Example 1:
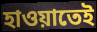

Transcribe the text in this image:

হাওয়াতেই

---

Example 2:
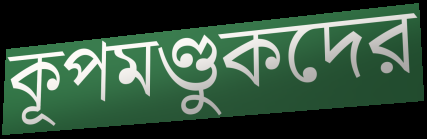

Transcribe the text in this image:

কূপমণ্ডুকদের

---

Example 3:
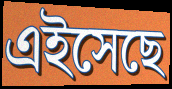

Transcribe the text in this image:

এইসেছে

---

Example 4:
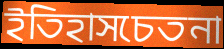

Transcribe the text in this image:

ইতিহাসচেতনা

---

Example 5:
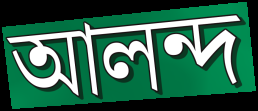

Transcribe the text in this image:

আলন্দ